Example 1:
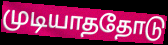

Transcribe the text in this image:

முடியாததோடு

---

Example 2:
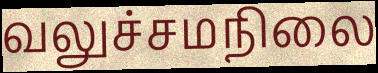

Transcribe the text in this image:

வலுச்சமநிலை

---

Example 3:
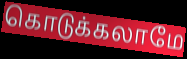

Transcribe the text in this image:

கொடுக்கலாமே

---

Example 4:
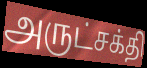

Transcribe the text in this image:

அருட்சக்தி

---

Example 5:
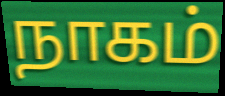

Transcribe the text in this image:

நாகம்